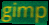
gimp